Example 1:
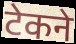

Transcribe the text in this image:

टेकने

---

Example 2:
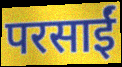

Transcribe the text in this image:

परसाईं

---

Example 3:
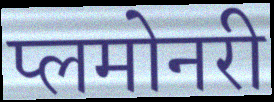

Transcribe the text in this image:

प्लमोनरी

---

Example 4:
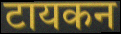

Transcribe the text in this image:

टायकन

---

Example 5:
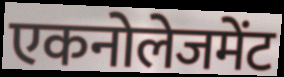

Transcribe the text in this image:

एकनोलेजमेंट